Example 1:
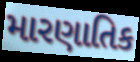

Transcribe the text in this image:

મારણાતિક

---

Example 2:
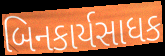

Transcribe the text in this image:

બિનકાર્યસાધક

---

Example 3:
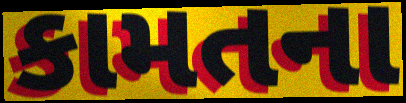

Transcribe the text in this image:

કામતના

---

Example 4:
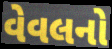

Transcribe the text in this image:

વેવલનો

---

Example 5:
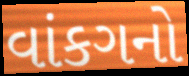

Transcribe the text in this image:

વાંકગનો